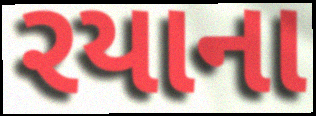
રયાના